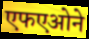
एफएओने